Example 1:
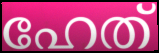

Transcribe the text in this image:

ഹേത്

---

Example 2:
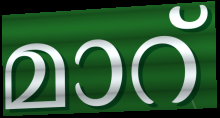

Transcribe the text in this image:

മാറ്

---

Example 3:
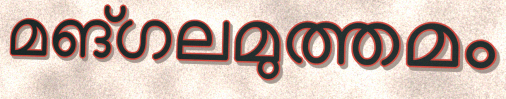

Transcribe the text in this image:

മങ്ഗലമുത്തമം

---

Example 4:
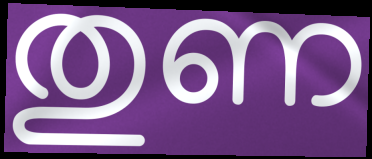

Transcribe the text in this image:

തുണ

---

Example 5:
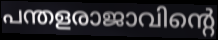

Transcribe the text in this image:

പന്തളരാജാവിന്റെ